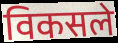
विकसले